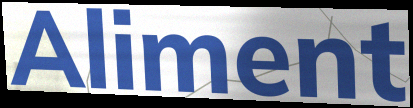
Aliment